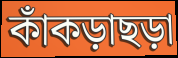
কাঁকড়াছড়া